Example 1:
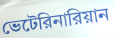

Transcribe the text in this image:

ভেটেরিনারিয়ান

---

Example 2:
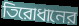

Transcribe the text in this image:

তিরোধানের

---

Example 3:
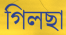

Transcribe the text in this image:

গিলছা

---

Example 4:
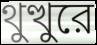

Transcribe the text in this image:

থুত্থুরে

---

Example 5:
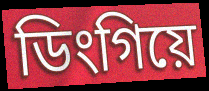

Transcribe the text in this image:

ডিংগিয়ে